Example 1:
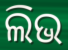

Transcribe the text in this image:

ଲିଭ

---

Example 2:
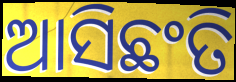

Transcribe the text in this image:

ଆସିଛଂତି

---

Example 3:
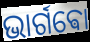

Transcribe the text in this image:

ଭାର୍ଗଵୋ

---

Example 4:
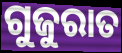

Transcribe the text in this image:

ଗୁଜୁରାତ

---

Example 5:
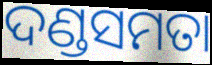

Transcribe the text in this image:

ଦଣ୍ଡସମତା